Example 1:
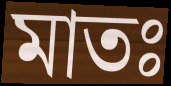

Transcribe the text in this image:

মাতঃ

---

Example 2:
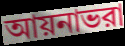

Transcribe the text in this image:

আয়নাভরা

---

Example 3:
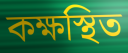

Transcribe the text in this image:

কক্ষস্থিত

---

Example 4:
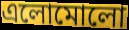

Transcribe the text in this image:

এলোমোলো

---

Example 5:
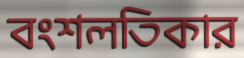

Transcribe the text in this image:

বংশলতিকার